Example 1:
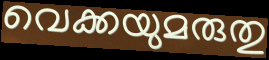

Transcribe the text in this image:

വെക്കയുമരുതു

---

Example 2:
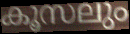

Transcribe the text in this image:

കൂസലും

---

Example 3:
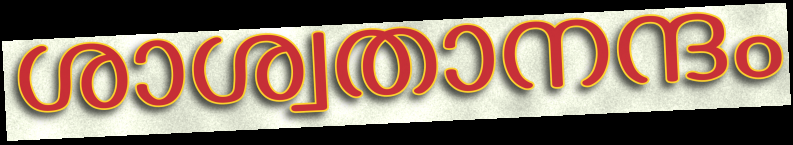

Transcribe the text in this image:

ശാശ്വതാനന്ദം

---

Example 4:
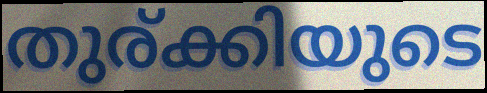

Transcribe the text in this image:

തുര്ക്കിയുടെ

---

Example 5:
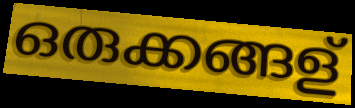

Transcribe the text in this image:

ഒരുക്കങ്ങള്